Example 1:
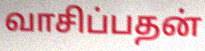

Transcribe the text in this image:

வாசிப்பதன்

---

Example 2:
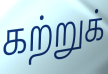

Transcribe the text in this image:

கற்றுக்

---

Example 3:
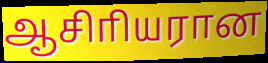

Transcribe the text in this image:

ஆசிரியரான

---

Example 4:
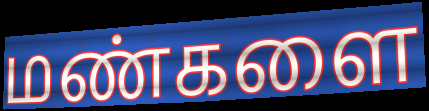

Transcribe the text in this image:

மண்களை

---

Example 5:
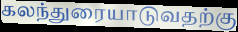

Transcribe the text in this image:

கலந்துரையாடுவதற்கு